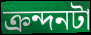
ক্রন্দনটা